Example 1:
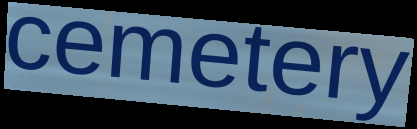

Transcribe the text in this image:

cemetery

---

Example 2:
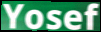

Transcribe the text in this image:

Yosef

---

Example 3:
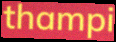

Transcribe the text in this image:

thampi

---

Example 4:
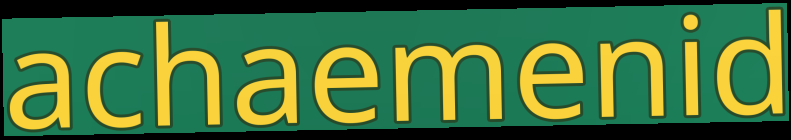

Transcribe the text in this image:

achaemenid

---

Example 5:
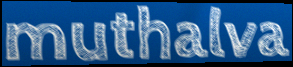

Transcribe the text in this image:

muthalva